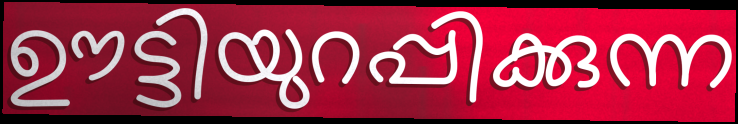
ഊട്ടിയുറപ്പിക്കുന്ന